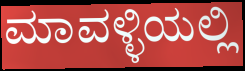
ಮಾವಳ್ಳಿಯಲ್ಲಿ